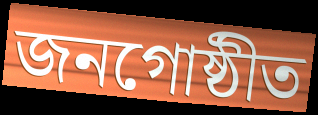
জনগোষ্ঠীত